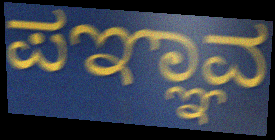
ಪಞ್ಞಾವ